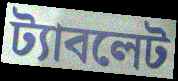
ট্যাবলেট